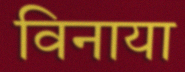
विनाया